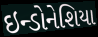
ઇન્ડોનેશિયા